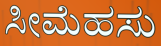
ಸೀಮೆಹಸು